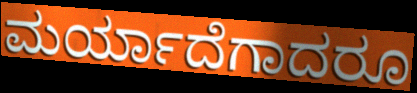
ಮರ್ಯಾದೆಗಾದರೂ